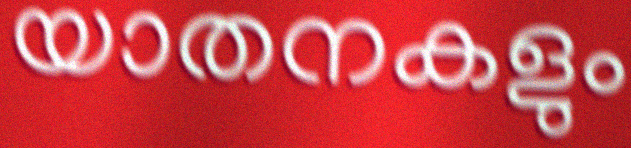
യാതനകളും